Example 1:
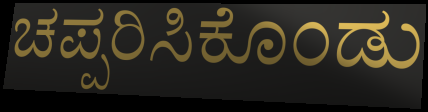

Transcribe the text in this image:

ಚಪ್ಪರಿಸಿಕೊಂಡು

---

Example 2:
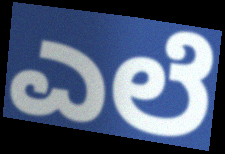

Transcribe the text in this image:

ಎಲೆ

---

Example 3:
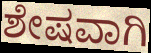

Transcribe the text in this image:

ಶೇಷವಾಗಿ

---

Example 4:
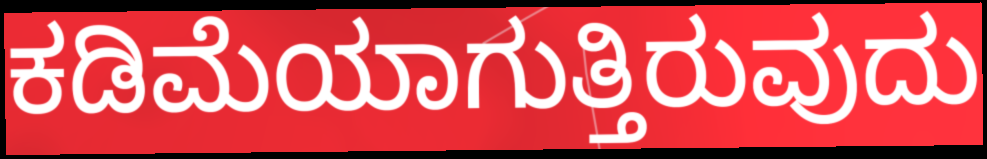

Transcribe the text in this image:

ಕಡಿಮೆಯಾಗುತ್ತಿರುವುದು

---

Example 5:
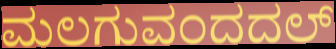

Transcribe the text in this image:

ಮಲಗುವಂದದಲ್